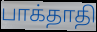
பாக்தாதி